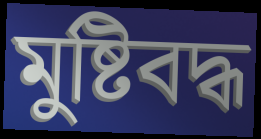
মুষ্টিবদ্ধ